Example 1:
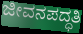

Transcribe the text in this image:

ಜೀವನಪದ್ಧತಿ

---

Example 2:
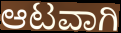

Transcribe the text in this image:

ಆಟವಾಗಿ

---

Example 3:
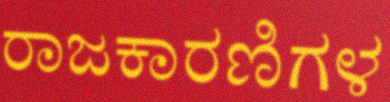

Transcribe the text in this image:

ರಾಜಕಾರಣಿಗಳ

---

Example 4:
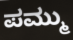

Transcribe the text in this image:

ಪಮ್ಮು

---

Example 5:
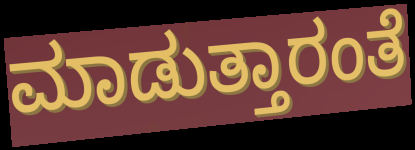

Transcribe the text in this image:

ಮಾಡುತ್ತಾರಂತೆ